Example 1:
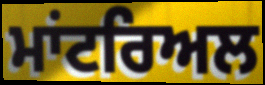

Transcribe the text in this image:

ਮਾਂਟਰਿਅਲ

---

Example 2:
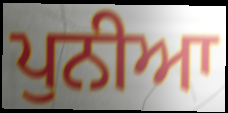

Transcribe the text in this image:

ਪੁਨੀਆ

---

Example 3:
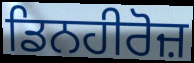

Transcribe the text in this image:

ਡਿਨਹੀਰੋਜ਼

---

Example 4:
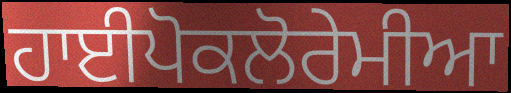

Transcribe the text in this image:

ਹਾਈਪੋਕਲੋਰੇਮੀਆ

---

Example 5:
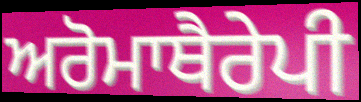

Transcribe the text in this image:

ਅਰੋਮਾਥੈਰੇਪੀ